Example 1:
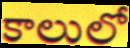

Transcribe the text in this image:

కాలులో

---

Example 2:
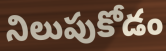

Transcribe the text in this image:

నిలుపుకోడం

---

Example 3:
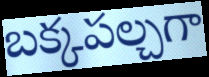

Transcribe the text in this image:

బక్కపల్చగా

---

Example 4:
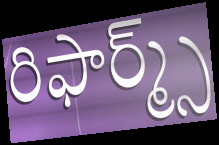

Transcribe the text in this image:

రిఫార్మ్స్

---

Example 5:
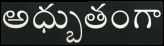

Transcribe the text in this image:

అధ్బుతంగా